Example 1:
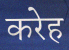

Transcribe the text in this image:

करेह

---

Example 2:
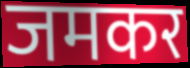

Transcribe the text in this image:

जमकर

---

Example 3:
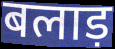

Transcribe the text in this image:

बलाड़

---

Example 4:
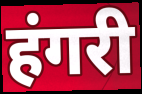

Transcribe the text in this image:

हंगरी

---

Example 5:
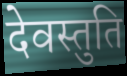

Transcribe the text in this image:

देवस्तुति